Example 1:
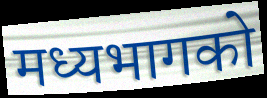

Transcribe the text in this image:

मध्यभागको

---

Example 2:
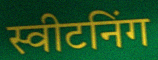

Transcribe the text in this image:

स्वीटनिंग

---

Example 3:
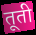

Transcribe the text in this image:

तूती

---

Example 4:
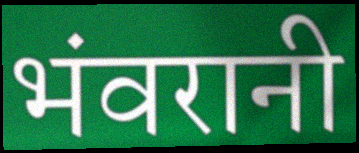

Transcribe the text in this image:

भंवरानी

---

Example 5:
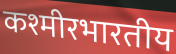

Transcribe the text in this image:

कश्मीरभारतीय